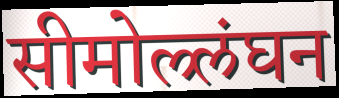
सीमोल्लंघन